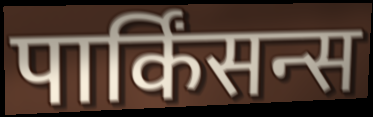
पार्किंसन्स